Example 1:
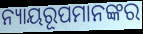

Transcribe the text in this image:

ନ୍ୟାୟରୂପମାନଙ୍କର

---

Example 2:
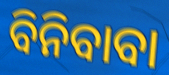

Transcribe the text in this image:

ବିନିବାବା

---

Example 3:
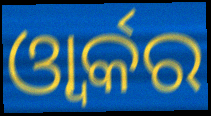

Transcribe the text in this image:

ଓ୍ବାର୍କର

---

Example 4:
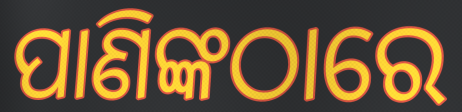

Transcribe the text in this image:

ପାଣିଙ୍କଠାରେ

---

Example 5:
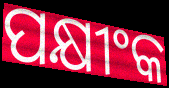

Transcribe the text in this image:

ପକ୍ଷୀଂକ